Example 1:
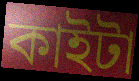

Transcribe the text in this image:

কাইটা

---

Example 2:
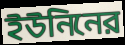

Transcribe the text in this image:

ইউনিনের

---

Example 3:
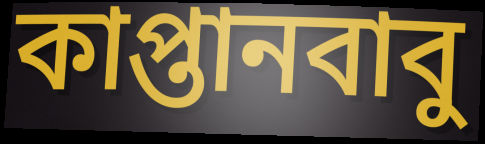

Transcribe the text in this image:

কাপ্তানবাবু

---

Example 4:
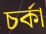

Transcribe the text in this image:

চর্কা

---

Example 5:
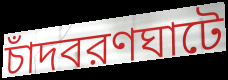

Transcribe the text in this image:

চাঁদবরণঘাটে